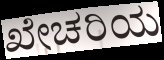
ಖೇಚರಿಯ